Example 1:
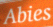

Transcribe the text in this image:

Abies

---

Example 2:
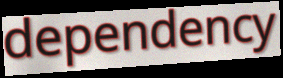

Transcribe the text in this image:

dependency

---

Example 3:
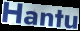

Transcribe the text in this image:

Hantu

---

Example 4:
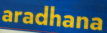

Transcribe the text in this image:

aradhana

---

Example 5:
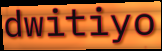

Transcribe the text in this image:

dwitiyo